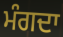
ਮੰਗਦਾ